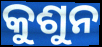
କୁଶୁନ